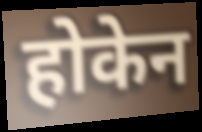
होकेन